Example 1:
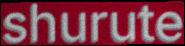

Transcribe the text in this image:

shurute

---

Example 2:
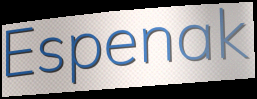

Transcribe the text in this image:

Espenak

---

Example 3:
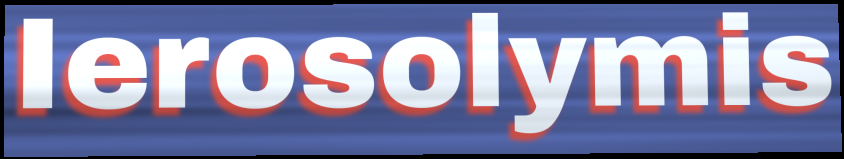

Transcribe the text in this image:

Ierosolymis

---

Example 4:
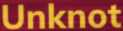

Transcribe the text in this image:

Unknot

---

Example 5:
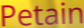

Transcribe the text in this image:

Petain